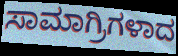
ಸಾಮಾಗ್ರಿಗಳಾದ